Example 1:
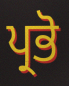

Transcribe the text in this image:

ਪ੍ਰਭੋ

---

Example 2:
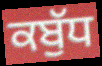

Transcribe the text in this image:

ਕਬੁੱਧ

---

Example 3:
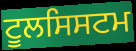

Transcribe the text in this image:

ਟੂਲਸਿਸਟਮ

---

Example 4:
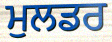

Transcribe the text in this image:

ਮੁਲਡਰ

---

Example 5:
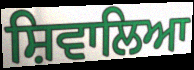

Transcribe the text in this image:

ਸ਼ਿਵਾਲਿਆ